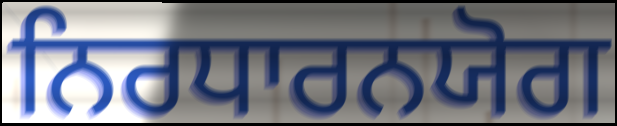
ਨਿਰਧਾਰਨਯੋਗ